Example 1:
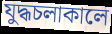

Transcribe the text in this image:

যুদ্ধচলাকালে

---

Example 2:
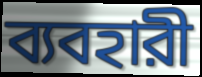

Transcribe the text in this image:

ব্যবহারী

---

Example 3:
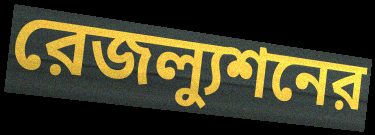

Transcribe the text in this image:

রেজল্যুশনের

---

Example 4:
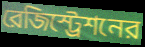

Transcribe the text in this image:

রেজিস্ট্রেশনের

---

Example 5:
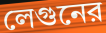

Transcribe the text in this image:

লেগুনের